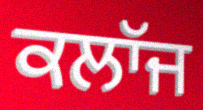
ਕਲਾੱਜ